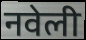
नवेली